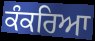
ਕੰਕਰਿਆ